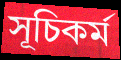
সূচিকর্ম